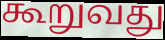
கூறுவது